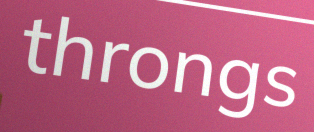
throngs